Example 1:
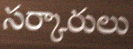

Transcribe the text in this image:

సర్కారులు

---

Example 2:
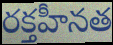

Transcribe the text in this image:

రక్తహీనత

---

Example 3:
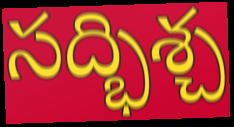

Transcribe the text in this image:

సద్భిశ్చ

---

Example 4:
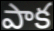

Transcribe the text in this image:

పాక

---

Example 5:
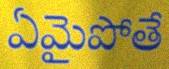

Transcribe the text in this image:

ఏమైపోతే